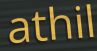
athil